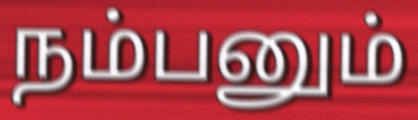
நம்பனும்